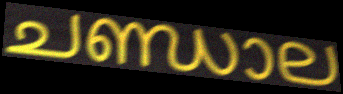
ചണ്ഡാല